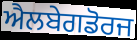
ਐਲਬੇਗਡੋਰਜ